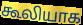
கூலியாக